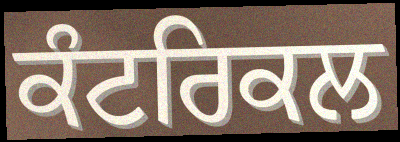
ਕੰਟਰਿਕਲ